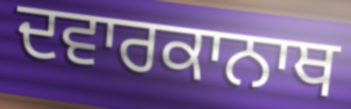
ਦਵਾਰਕਾਨਾਥ